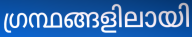
ഗ്രന്ഥങ്ങളിലായി